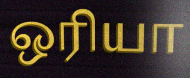
ஒரியா